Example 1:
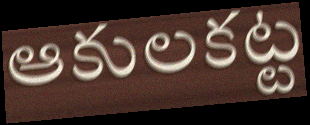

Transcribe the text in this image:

ఆకులకట్ట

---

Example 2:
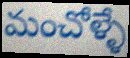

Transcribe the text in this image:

మంచోళ్ళే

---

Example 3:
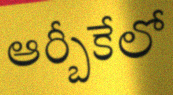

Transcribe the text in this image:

ఆర్బీకేలో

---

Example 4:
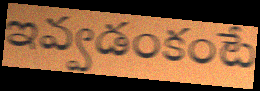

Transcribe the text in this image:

ఇవ్వడంకంటే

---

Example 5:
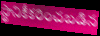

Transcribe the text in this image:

స్థానికీకరించబడిన